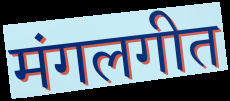
मंगलगीत